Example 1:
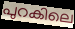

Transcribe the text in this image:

പുറകിലെ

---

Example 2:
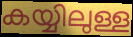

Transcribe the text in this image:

കയ്യിലുള്ള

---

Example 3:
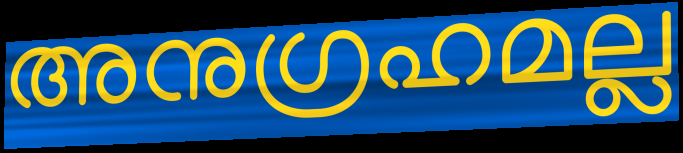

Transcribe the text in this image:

അനുഗ്രഹമല്ല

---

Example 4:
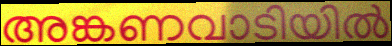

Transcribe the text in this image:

അങ്കണവാടിയിൽ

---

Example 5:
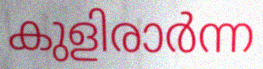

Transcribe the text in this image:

കുളിരാർന്ന